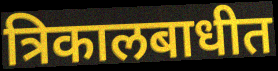
त्रिकालबाधीत